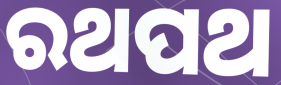
ରଥପଥ